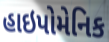
હાઇપોમેનિક